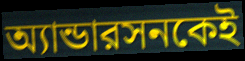
অ্যান্ডারসনকেই